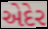
એદેર